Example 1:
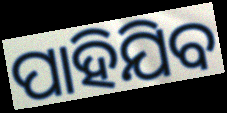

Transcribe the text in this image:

ପାହିଯିବ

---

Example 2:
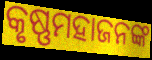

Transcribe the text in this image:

କୃଷ୍ଣମହାଜନଙ୍କ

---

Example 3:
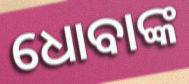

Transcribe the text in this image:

ଧୋବାଙ୍କ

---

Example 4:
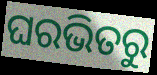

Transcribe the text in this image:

ଘରଭିତରୁ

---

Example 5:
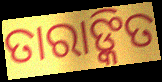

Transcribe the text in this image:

ତାରାଙ୍କିତ